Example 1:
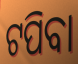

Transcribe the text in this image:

ଟପିବା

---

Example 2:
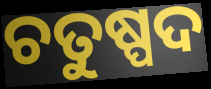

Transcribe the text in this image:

ଚତୁଷ୍ପଦ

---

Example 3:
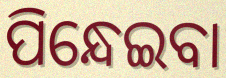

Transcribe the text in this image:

ପିନ୍ଧେଇବା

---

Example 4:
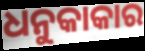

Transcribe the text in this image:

ଧନୁକାକାର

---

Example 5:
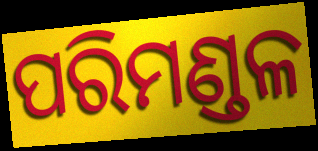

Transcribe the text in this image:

ପରିମଣ୍ଡଳ